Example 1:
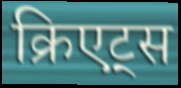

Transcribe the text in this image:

क्रिएट्स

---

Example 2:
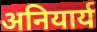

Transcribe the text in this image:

अनियार्य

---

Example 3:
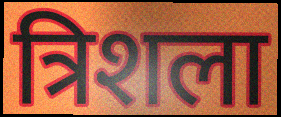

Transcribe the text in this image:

त्रिशला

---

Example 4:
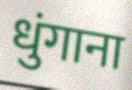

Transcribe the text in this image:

धुंगाना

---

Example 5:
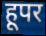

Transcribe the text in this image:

हूपर